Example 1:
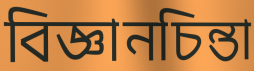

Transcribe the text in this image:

বিজ্ঞানচিন্তা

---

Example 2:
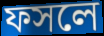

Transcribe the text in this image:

ফসলে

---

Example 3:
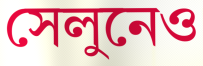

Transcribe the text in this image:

সেলুনেও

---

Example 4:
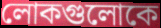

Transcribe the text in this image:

লোকগুলোকে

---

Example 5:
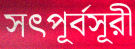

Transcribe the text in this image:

সৎপূর্বসূরী